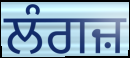
ਲੰਗਜ਼